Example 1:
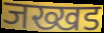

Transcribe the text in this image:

जख्खड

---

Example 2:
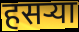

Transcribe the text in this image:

हसऱ्या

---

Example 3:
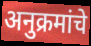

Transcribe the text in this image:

अनुक्रमांचे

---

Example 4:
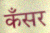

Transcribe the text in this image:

कँसर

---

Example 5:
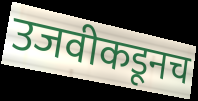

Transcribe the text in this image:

उजवीकडूनच